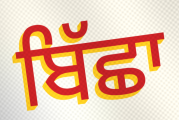
ਬਿੱਛਾ